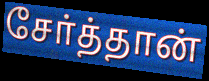
சேர்த்தான்